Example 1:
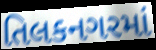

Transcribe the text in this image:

તિલકનગરમાં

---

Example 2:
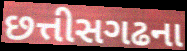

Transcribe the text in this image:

છત્તીસગઢના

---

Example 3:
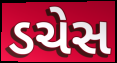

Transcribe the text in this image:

ડચેસ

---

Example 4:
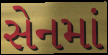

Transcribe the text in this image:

સેનમાં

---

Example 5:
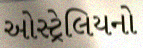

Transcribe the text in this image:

ઓસ્ટ્રેલિયનો